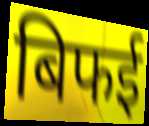
बिफई